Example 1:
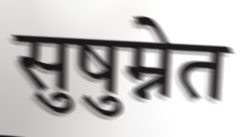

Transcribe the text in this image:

सुषुम्नेत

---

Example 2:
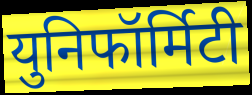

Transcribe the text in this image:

युनिफॉर्मिटी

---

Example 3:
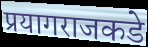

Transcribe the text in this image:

प्रयागराजकडे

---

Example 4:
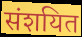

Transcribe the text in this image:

संशयित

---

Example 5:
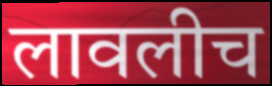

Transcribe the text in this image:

लावलीच